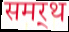
समर्थ